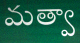
మత్వా